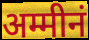
अम्मीनं